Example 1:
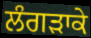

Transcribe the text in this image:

ਲੰਗੜਾਕੇ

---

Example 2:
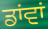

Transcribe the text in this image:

ਡਾਂਵਾਂ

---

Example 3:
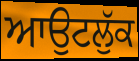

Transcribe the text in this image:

ਆਉਟਲੁੱਕ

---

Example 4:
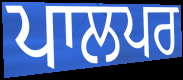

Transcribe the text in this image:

ਪਾਲਪਰ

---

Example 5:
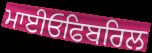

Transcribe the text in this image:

ਮਾਈਓਫਿਬਰਿਲ